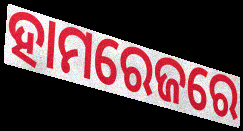
ହାମରେଜରେ